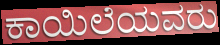
ಕಾಯಿಲೆಯವರು